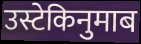
उस्टेकिनुमाब